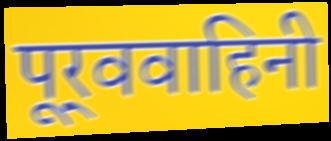
पूर्ववाहिनी